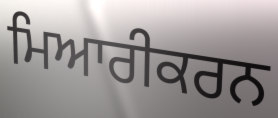
ਮਿਆਰੀਕਰਨ